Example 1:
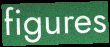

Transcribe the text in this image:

figures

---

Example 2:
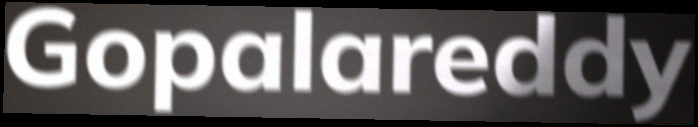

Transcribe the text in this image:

Gopalareddy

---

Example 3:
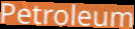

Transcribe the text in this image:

Petroleum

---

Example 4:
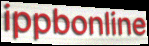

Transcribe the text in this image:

ippbonline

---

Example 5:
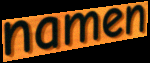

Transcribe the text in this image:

namen